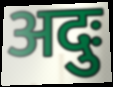
अदुः